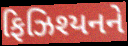
ફિઝિશ્યનને